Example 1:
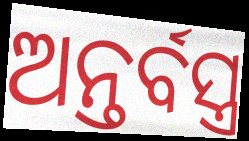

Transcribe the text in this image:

ଅନ୍ତର୍ବସ୍ତ୍ର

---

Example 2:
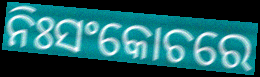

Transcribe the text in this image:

ନିଃସଂକୋଚରେ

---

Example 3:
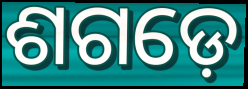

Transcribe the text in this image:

ଶଗଡ଼େ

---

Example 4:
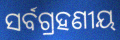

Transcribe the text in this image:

ସର୍ବଗ୍ରହଣୀୟ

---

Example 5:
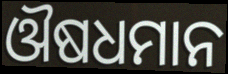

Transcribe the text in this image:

ଔଷଧମାନ